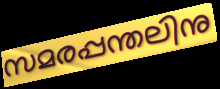
സമരപ്പന്തലിനു